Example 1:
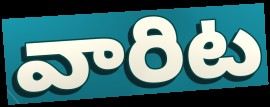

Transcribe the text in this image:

వారిట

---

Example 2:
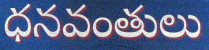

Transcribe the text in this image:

ధనవంతులు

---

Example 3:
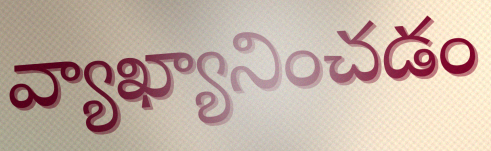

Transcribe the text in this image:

వ్యాఖ్యానించడం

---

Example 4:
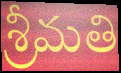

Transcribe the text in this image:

శ్రీమతి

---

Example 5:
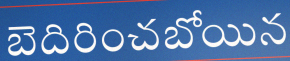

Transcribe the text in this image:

బెదిరించబోయిన